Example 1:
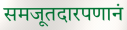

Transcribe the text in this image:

समजूतदारपणानं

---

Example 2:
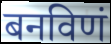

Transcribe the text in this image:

बनविणं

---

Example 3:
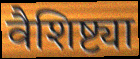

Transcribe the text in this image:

वैशिष्ट्या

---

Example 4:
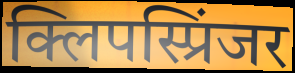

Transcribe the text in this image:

क्लिपस्प्रिंजर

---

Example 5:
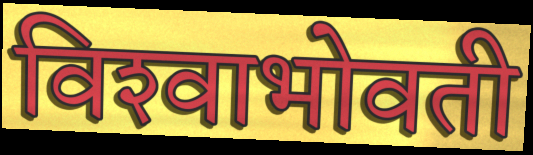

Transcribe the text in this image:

विश्वाभोवती